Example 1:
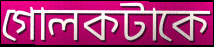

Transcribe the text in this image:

গোলকটাকে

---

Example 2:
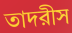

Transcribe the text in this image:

তাদরীস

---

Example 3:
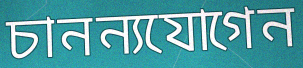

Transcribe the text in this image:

চানন্যযোগেন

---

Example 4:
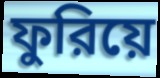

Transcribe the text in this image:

ফুরিয়ে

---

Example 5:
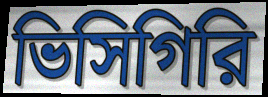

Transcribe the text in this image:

ভিসিগিরি